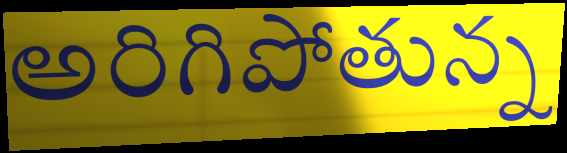
అరిగిపోతున్న